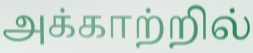
அக்காற்றில்